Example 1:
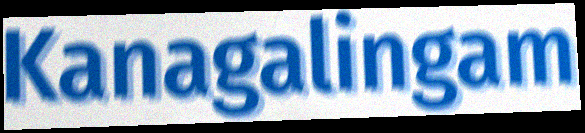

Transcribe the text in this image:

Kanagalingam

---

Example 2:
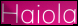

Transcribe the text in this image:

Haiola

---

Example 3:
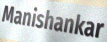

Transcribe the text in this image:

Manishankar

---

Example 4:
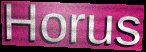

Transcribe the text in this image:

Horus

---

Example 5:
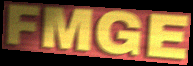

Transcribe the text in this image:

FMGE